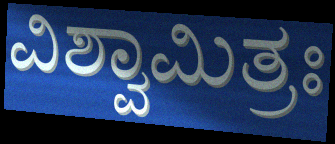
ವಿಶ್ವಾಮಿತ್ರಃ